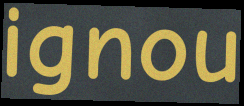
ignou